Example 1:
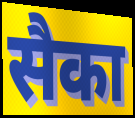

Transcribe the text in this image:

सैका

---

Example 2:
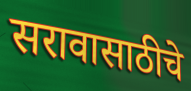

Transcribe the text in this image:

सरावासाठीचे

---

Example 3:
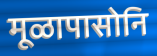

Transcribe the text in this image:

मूळापासोनि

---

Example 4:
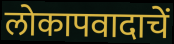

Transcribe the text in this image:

लोकापवादाचें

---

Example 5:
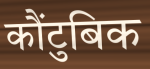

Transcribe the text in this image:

कौंटुबिक